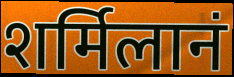
शर्मिलानं